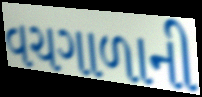
વચગાળાની